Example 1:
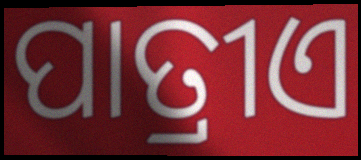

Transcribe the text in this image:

ପାତ୍ରୀଏ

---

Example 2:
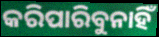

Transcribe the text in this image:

କରିପାରିବୁନାହିଁ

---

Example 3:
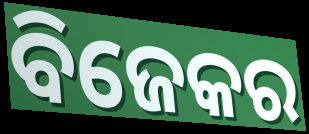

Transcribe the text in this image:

ବିଜେକର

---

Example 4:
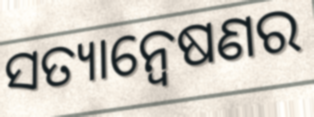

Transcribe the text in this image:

ସତ୍ୟାନ୍ୱେଷଣର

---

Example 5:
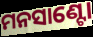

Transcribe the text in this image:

ମନସାଣ୍ଟୋ